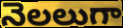
నెలలుగా